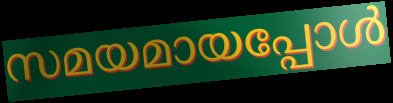
സമയമായപ്പോൾ